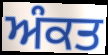
ਅੰਕਤ